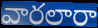
వారలారా